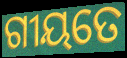
ଗୀୟତେ